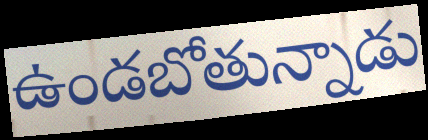
ఉండబోతున్నాడు